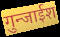
गुन्जाईश